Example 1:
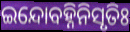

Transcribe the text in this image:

ଇନ୍ଦୋବହ୍ନିନିସୃତିଃ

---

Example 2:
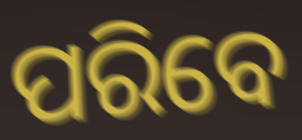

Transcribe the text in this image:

ପରିବେ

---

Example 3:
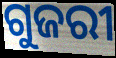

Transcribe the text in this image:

ଗୁଜରୀ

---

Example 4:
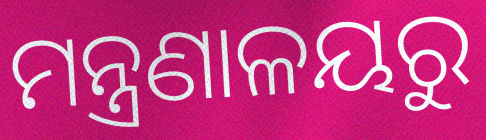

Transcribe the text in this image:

ମନ୍ତ୍ରଣାଳୟରୁ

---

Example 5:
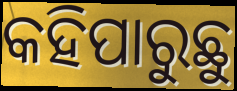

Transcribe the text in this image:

କହିପାରୁଛୁ